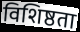
विशिष्ठता